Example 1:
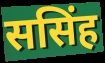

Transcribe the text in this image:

ससिंह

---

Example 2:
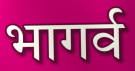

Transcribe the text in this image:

भागर्व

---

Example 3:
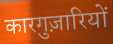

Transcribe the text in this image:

कारगुज़ारियों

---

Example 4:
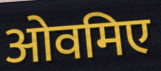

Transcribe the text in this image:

ओवमिए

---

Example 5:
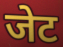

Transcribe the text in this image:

जेट